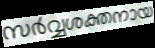
സർവ്വശക്തനായ